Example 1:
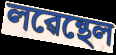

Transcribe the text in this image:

লৱেন্থেল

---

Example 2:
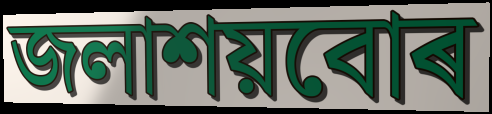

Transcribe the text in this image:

জলাশয়বোৰ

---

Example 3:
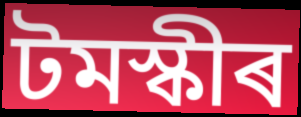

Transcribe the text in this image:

টমস্কীৰ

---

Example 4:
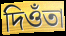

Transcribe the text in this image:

দিওঁতা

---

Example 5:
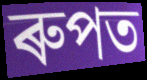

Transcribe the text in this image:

ৰুপত